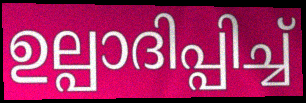
ഉല്പാദിപ്പിച്ച്